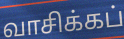
வாசிக்கப்